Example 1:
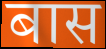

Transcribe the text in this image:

बास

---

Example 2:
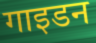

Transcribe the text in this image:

गाइडन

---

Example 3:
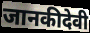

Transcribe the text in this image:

जानकीदेवी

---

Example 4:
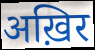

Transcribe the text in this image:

अख़िर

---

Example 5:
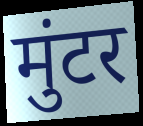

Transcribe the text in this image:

मुंटर